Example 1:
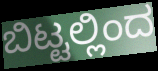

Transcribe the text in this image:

ಬಿಟ್ಟಲ್ಲಿಂದ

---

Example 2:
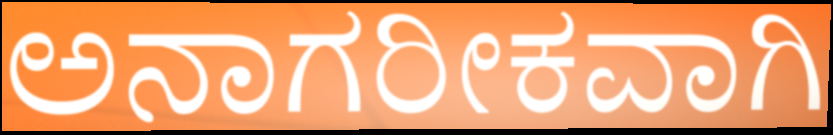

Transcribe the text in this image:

ಅನಾಗರೀಕವಾಗಿ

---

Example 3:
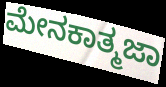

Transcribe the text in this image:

ಮೇನಕಾತ್ಮಜಾ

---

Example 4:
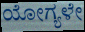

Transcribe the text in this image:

ಯೋಗ್ಯಳೇ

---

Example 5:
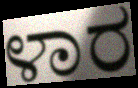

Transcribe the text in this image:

ಳಾರ